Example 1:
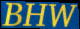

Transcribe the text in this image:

BHW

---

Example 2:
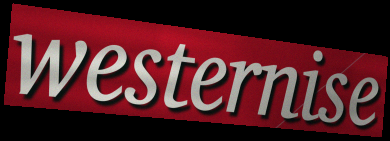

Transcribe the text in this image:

westernise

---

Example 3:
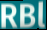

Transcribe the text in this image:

RBl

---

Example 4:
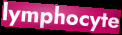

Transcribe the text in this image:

lymphocyte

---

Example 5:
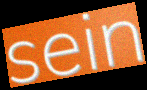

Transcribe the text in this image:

sein